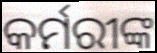
କର୍ମରୀଙ୍କ